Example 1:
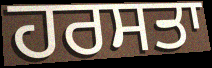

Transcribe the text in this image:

ਹਰਸਤਾ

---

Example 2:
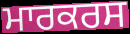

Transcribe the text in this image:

ਮਾਰਕਰਸ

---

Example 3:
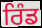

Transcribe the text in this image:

ਰਿੰਡ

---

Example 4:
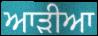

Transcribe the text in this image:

ਆੜੀਆ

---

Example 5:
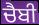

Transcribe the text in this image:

ਚੈਬੀ